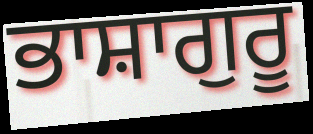
ਭਾਸ਼ਾਗੁਰੂ